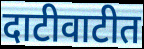
दाटीवाटीत